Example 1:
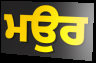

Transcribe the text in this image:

ਮਉਰ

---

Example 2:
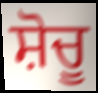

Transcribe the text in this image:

ਸ਼ੋਚੂ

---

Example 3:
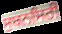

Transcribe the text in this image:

ਸੁਬਨਸਿਰੀ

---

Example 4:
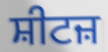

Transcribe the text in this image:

ਸ਼ੀਟਜ਼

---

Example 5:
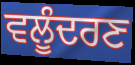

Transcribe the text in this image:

ਵਲੂੰਦਰਣ